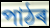
পাঠৰ